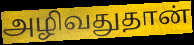
அழிவதுதான்